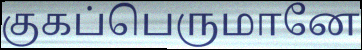
குகப்பெருமானே